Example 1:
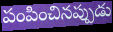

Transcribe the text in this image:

పంపించినప్పుడు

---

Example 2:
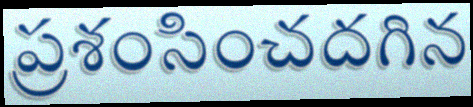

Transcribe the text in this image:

ప్రశంసించదగిన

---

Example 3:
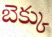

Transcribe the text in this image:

బెక్కు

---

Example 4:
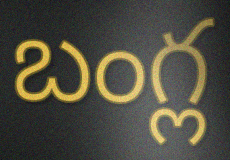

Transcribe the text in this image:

బంగ్ల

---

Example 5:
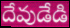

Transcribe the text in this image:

దేవుడేడి